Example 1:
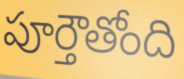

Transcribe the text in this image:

పూర్తౌతోంది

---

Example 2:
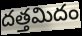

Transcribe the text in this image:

దత్తమిదం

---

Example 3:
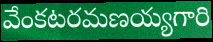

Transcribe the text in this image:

వేంకటరమణయ్యగారి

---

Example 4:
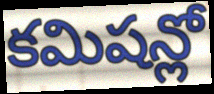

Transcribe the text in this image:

కమిషన్లో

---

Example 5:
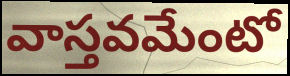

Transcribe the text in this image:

వాస్తవమేంటో